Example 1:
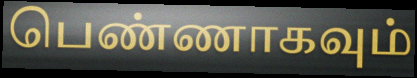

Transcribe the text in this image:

பெண்ணாகவும்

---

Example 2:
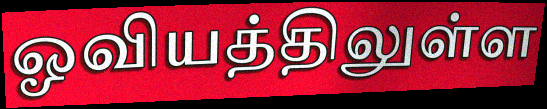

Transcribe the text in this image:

ஓவியத்திலுள்ள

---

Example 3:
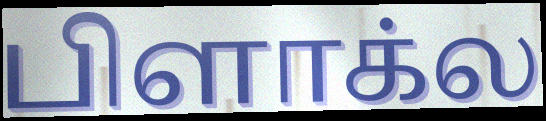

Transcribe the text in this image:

பிளாக்ல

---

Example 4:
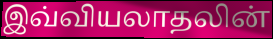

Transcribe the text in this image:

இவ்வியலாதலின்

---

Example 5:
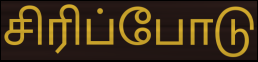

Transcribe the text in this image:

சிரிப்போடு